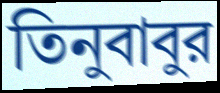
তিনুবাবুর